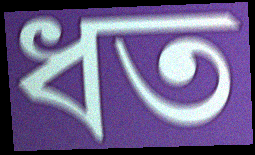
ধত